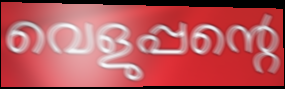
വെളുപ്പന്റെ